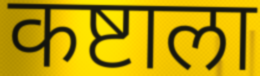
कष्टाला